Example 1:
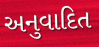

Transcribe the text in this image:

અનુવાદિત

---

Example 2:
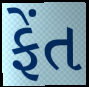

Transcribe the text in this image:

ફેંત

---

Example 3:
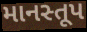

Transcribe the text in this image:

માનસ્તૂપ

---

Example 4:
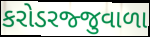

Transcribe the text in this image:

કરોડરજ્જુવાળા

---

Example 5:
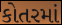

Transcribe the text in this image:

કોતરમાં